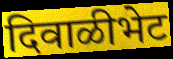
दिवाळीभेट